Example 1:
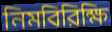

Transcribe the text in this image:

নিমবিরিক্ষি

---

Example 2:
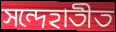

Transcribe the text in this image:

সন্দেহাতীত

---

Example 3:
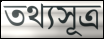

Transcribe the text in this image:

তথ্যসূত্র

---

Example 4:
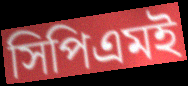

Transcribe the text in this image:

সিপিএমই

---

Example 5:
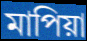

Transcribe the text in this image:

মাপিয়া